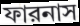
ফারনাস